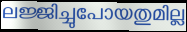
ലജ്ജിച്ചുപോയതുമില്ല